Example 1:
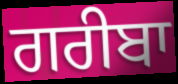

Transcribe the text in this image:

ਗਰੀਬਾ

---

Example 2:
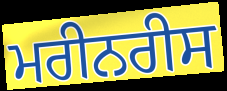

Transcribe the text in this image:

ਮਰੀਨਰੀਸ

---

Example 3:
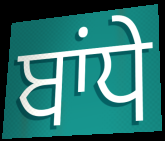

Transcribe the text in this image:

ਬਾਂਧੇ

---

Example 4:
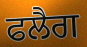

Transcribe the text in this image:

ਫਲੈਗ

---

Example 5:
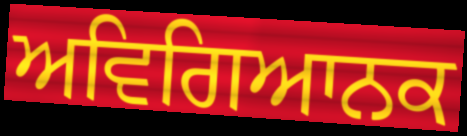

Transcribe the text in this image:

ਅਵਿਗਿਆਨਕ